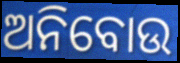
ଅନିବୋଉ